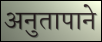
अनुतापाने